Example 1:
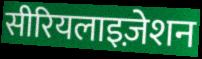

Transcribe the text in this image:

सीरियलाइज़ेशन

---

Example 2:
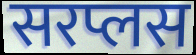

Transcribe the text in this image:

सरप्लस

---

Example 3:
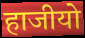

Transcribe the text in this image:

हाजीयो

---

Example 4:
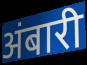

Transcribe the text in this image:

अंबारी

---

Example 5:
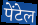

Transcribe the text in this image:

पेंटेल